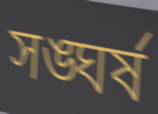
সঙ্ঘর্ষ